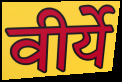
वीर्ये